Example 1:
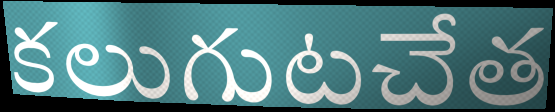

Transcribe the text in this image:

కలుగుటచేత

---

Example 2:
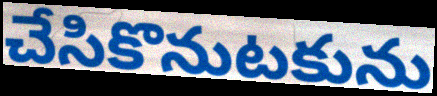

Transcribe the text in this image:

చేసికొనుటకును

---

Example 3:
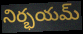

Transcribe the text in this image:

నిర్భయమ్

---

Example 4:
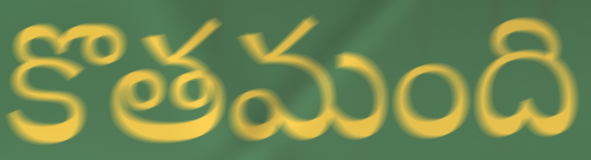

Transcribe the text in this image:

కొతమంది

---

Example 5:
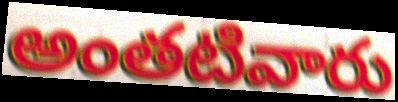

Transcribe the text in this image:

అంతటివారు